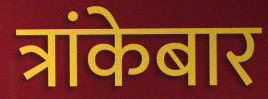
त्रांकेबार